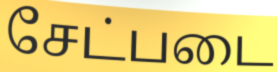
சேட்படை